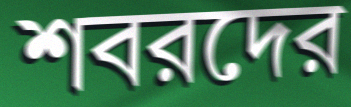
শবরদের